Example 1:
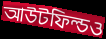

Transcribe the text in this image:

আউটফিল্ডও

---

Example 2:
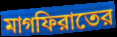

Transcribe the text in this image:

মাগফিরাতের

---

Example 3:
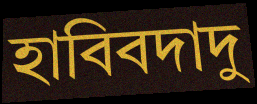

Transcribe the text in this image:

হাবিবদাদু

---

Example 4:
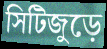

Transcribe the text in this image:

সিটিজুড়ে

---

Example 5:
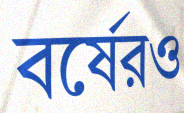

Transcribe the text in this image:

বর্ষেরও